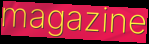
magazine